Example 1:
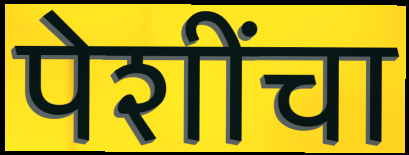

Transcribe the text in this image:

पेशींचा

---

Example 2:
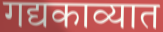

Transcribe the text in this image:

गद्यकाव्यात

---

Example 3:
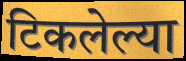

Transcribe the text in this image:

टिकलेल्या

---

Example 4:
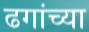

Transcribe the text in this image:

ढगांच्या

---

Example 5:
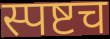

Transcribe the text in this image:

स्पष्टच